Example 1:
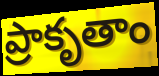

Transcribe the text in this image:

ప్రాకృతాం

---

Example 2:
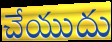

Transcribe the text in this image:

చేయుదు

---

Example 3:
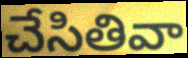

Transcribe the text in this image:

చేసితివా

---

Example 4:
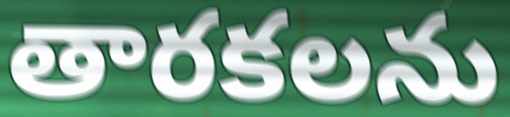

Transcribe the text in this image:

తారకలను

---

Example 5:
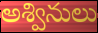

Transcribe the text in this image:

అశ్వినులు